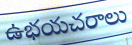
ఉభయచరాలు